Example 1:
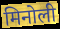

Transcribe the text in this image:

मिनोली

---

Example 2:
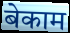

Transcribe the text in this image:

बेकाम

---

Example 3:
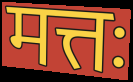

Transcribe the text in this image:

मत्तः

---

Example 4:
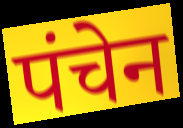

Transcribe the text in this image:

पंचेन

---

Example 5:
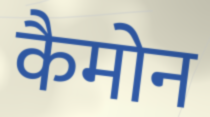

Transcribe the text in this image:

कैमोन